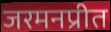
जरमनप्रीत